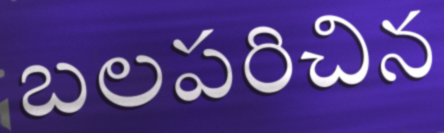
బలపరిచిన